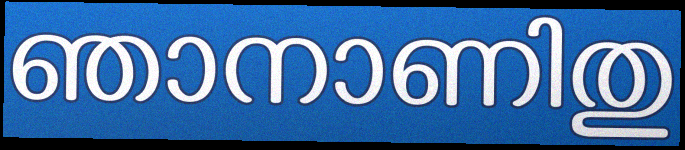
ഞാനാണിതു